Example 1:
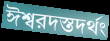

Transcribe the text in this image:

ঈশ্বরদস্তদর্থং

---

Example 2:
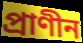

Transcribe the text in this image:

প্রাণীন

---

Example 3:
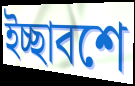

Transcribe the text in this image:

ইচ্ছাবশে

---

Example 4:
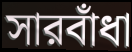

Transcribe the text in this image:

সারবাঁধা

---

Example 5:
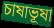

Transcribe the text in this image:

চাষাভূষা